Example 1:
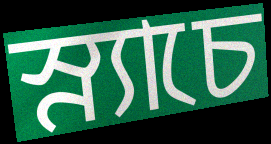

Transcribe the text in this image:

স্ন্যাচে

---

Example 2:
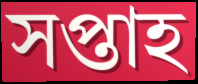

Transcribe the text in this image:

সপ্তাহ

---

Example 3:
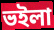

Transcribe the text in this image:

ভইলা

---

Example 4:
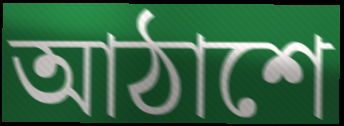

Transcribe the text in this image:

আঠাশে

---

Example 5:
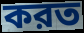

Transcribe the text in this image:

করত